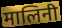
मालिनी